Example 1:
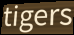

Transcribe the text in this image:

tigers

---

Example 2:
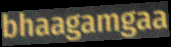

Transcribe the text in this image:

bhaagamgaa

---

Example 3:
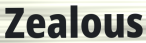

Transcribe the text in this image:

Zealous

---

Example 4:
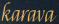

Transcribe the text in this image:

karava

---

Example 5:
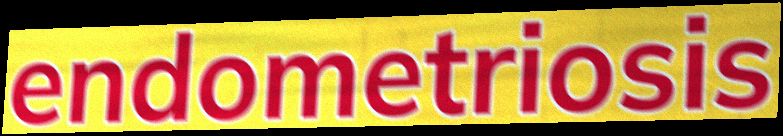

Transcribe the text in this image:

endometriosis